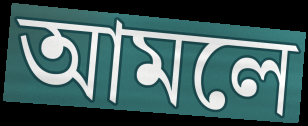
আমলে